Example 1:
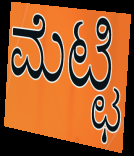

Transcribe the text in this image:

ಮೆಟ್ಟಿ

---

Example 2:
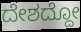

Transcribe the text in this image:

ದೇಶದ್ದೋ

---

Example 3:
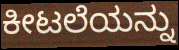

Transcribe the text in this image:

ಕೀಟಲೆಯನ್ನು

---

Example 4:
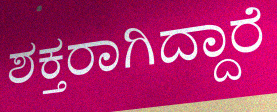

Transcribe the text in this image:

ಶಕ್ತರಾಗಿದ್ದಾರೆ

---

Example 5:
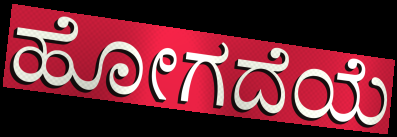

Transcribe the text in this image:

ಹೋಗದೆಯೆ